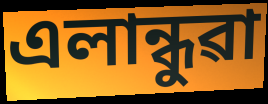
এলান্ধুৱা